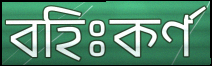
বহিঃকর্ণ